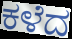
ಕಳೆದ